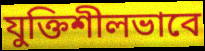
যুক্তিশীলভাবে